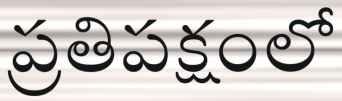
ప్రతిపక్షంలో